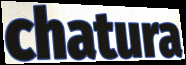
chatura